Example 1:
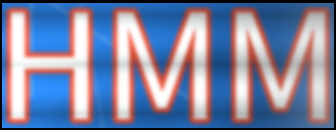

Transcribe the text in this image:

HMM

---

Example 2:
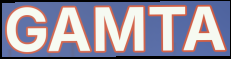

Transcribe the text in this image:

GAMTA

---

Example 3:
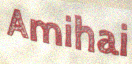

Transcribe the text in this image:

Amihai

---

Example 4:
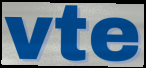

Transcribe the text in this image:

vte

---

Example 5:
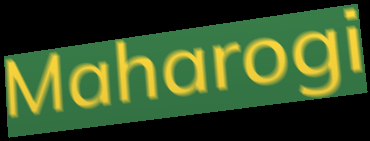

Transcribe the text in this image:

Maharogi